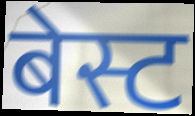
बेस्‍ट